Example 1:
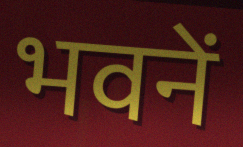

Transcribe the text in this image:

भवनें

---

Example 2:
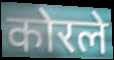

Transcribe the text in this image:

कोरले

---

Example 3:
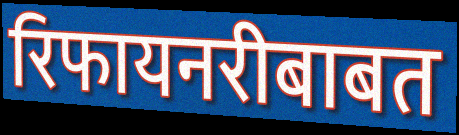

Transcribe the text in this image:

रिफायनरीबाबत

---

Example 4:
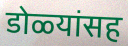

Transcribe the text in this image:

डोळ्यांसह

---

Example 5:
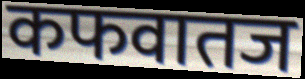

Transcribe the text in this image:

कफवातज